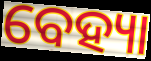
ବେହ୍ୟା